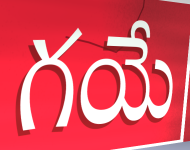
గయే